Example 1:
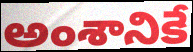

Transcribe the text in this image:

అంశానికే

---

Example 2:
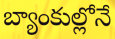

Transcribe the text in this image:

బ్యాంకుల్లోనే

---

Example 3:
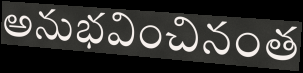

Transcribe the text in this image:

అనుభవించినంత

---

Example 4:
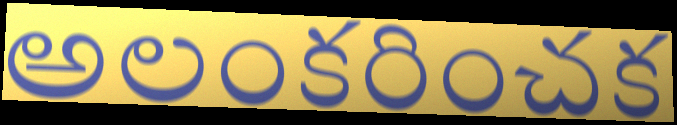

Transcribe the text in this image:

అలంకరించక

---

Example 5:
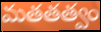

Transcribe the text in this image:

మతతత్వం